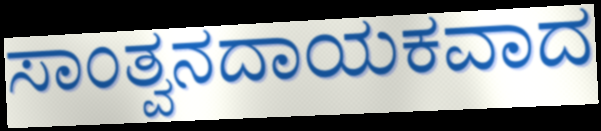
ಸಾಂತ್ವನದಾಯಕವಾದ